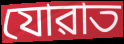
যোৱাত